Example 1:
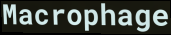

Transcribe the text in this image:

Macrophage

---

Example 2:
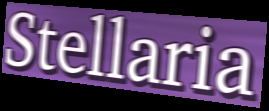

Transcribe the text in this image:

Stellaria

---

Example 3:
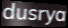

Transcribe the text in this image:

dusrya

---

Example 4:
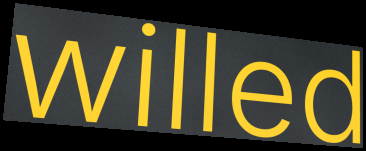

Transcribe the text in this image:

willed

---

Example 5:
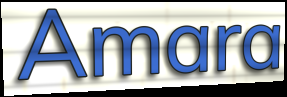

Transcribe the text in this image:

Amara